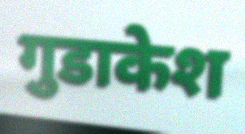
गुडाकेश